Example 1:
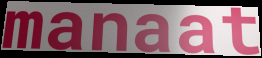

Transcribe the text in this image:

manaat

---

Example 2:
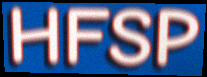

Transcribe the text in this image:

HFSP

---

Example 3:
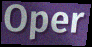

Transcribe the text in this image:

Oper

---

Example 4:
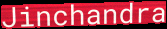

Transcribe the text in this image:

Jinchandra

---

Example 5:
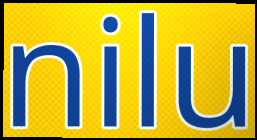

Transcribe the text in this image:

nilu